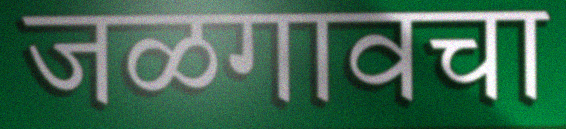
जळगावचा